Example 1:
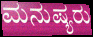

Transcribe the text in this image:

ಮನುಷ್ಯರು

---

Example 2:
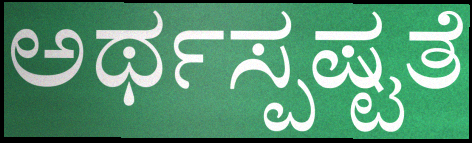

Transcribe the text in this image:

ಅರ್ಥಸ್ಪಷ್ಟತೆ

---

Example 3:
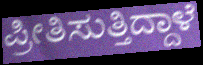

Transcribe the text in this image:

ಪ್ರೀತಿಸುತ್ತಿದ್ದಾಳೆ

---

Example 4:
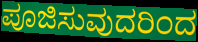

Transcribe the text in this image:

ಪೂಜಿಸುವುದರಿಂದ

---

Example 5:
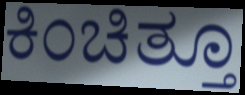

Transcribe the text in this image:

ಕಿಂಚಿತ್ತೂ